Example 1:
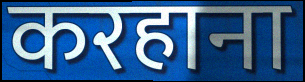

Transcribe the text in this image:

करहाना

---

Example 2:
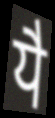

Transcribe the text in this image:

यै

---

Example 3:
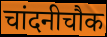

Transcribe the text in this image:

चांदनीचौक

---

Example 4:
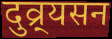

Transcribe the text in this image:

दुव्र्यसन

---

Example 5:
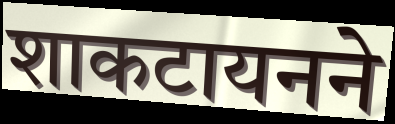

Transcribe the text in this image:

शाकटायनने